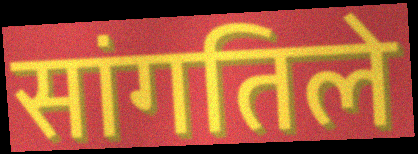
सांगतिले